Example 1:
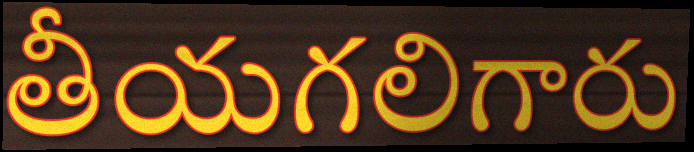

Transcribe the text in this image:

తీయగలిగారు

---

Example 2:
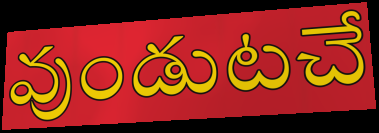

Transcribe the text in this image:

వుండుటచే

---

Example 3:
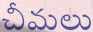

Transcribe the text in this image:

చీమలు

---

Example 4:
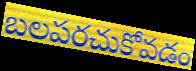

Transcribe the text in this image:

బలపరచుకోవడం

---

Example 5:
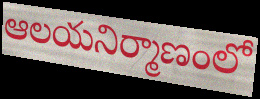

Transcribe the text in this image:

ఆలయనిర్మాణంలో